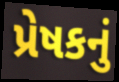
પ્રેષકનું